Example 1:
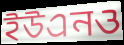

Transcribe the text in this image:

ইউএনও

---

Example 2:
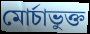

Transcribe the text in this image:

মোর্চাভুক্ত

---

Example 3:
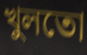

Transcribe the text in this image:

খুলতো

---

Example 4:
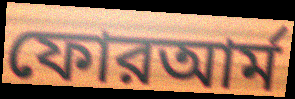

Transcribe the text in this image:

ফোরআর্ম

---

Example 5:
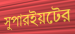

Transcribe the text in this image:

সুপারইয়টের